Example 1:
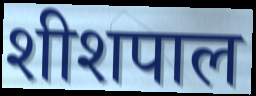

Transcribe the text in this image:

शीशपाल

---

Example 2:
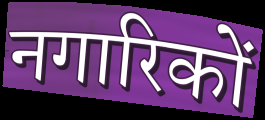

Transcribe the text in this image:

नगारिकों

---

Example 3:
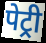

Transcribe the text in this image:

पेट्री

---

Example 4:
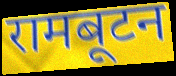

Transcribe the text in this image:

रामबूटन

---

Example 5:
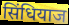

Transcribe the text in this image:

सिंधियाज